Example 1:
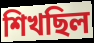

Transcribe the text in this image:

শিখছিল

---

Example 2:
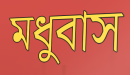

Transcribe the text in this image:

মধুবাস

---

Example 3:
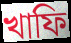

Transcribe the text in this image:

খাফি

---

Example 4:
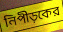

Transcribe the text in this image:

নিপীড়কের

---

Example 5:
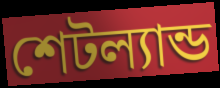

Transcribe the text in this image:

শেটল্যান্ড